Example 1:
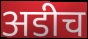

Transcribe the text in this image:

अडीच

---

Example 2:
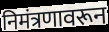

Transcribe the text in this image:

निमंत्रणावरून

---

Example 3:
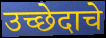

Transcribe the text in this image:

उच्छेदाचे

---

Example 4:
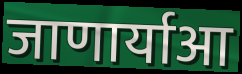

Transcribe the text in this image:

जाणार्याआ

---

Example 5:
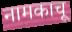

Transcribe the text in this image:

नामकाचू